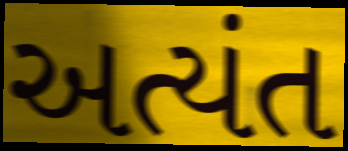
અત્યંત